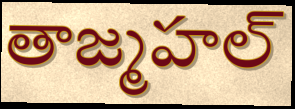
తాజ్మహల్